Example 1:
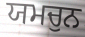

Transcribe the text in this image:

ਯਮਚੁਨ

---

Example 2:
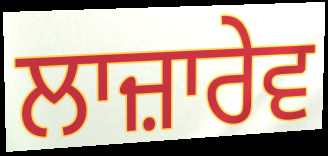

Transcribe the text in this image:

ਲਾਜ਼ਾਰੇਵ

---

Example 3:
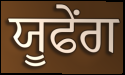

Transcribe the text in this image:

ਯੂਫੇਂਗ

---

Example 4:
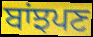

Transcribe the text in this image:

ਬਾਂਝਪਣ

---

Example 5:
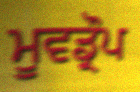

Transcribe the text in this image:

ਮੂਵਡ੍ਰੌਪ